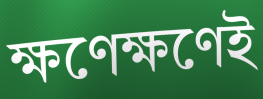
ক্ষণেক্ষণেই